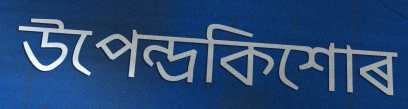
উপেন্দ্ৰকিশোৰ